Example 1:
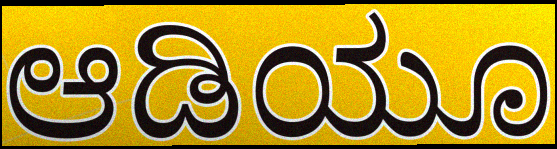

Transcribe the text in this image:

ಆಡಿಯೂ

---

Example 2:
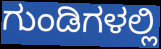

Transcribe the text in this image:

ಗುಂಡಿಗಳಲ್ಲಿ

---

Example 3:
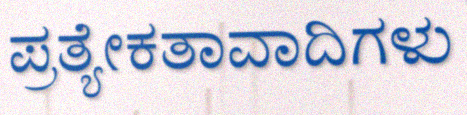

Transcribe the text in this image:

ಪ್ರತ್ಯೇಕತಾವಾದಿಗಳು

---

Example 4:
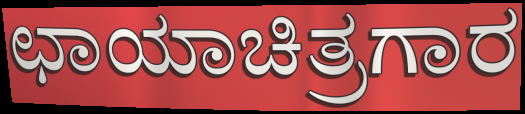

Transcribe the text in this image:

ಛಾಯಾಚಿತ್ರಗಾರ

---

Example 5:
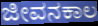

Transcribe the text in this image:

ಜೀವನಕಾಲ